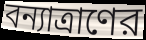
বন্যাত্রাণের